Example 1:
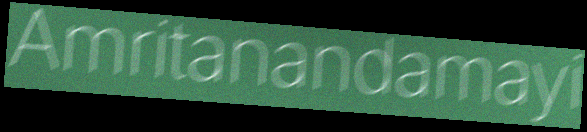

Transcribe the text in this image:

Amritanandamayi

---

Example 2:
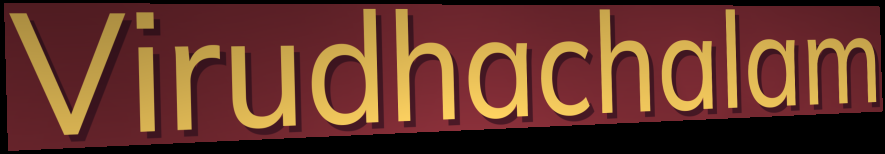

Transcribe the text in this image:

Virudhachalam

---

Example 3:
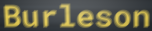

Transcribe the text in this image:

Burleson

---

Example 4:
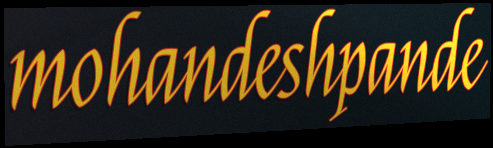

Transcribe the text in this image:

mohandeshpande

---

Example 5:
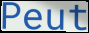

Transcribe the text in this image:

Peut